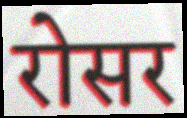
रोसर